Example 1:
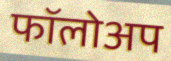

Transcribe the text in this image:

फॉलोअप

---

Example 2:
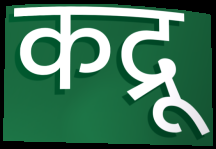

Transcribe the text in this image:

कद्रू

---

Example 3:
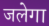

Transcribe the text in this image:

जलेगा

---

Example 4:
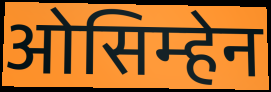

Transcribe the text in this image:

ओसिम्हेन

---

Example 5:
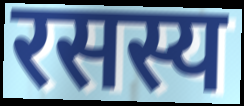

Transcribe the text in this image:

रसस्य